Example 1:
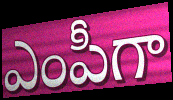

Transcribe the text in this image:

ఎంపీగా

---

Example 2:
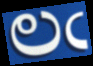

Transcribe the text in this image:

లఁ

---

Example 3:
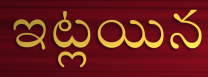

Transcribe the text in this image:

ఇట్లయిన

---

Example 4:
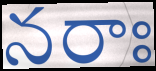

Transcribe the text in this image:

నరాః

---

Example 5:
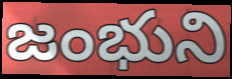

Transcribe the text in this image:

జంభుని